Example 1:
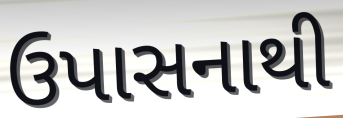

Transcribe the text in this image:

ઉપાસનાથી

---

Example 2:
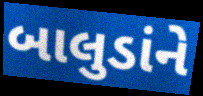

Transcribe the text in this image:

બાલુડાંને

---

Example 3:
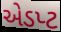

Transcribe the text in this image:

એડપ્ટ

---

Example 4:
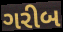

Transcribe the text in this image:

ગરીબ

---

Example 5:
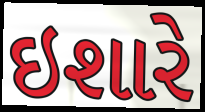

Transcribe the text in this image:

ઇશારે